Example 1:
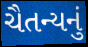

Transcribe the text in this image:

ચૈતન્યનું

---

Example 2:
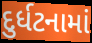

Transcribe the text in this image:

દુર્ધટનામાં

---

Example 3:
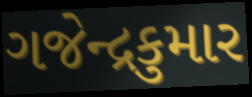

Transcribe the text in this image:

ગજેન્દ્રકુમાર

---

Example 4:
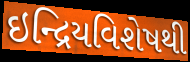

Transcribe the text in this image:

ઇન્દ્રિયવિશેષથી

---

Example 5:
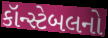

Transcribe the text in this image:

કૉન્સ્ટેબલનો